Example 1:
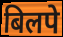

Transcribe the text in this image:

बिलपे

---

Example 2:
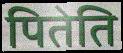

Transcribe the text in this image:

पितेति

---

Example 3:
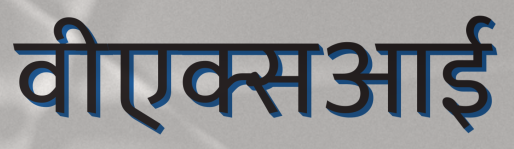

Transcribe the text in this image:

वीएक्सआई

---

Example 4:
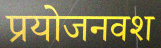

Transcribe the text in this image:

प्रयोजनवश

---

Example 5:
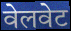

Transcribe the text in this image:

वेलवेट